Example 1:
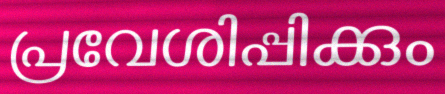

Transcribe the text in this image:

പ്രവേശിപ്പിക്കും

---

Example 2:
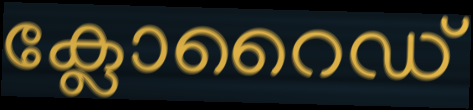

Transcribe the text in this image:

ക്ലോറൈഡ്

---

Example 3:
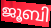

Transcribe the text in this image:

ജൂബി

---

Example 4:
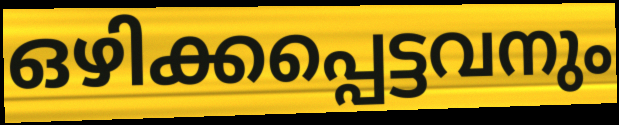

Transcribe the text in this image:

ഒഴിക്കപ്പെട്ടവനും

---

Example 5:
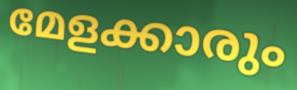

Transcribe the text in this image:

മേളക്കാരും